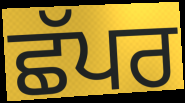
ਛੱਪਰ